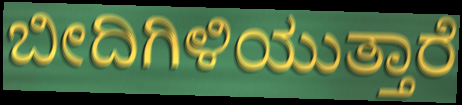
ಬೀದಿಗಿಳಿಯುತ್ತಾರೆ